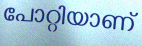
പോറ്റിയാണ്